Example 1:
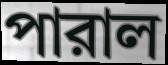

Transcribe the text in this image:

পারাল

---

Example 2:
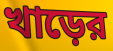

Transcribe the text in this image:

খাড়ের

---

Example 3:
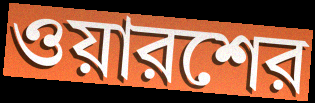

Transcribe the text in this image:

ওয়ারশের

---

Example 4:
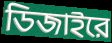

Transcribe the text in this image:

ডিজাইরে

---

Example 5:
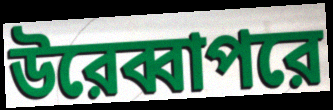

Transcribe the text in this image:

উরেব্বাপরে